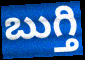
బుగ్తి